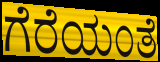
ಗೆರೆಯಂತೆ